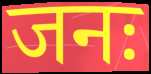
जनः